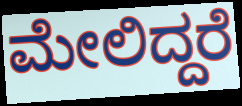
ಮೇಲಿದ್ದರೆ